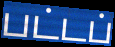
பட்டப்